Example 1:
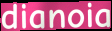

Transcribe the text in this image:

dianoia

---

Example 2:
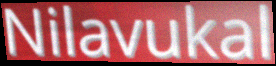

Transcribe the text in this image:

Nilavukal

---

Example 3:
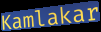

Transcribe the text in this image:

Kamlakar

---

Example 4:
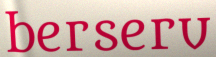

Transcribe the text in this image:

berseru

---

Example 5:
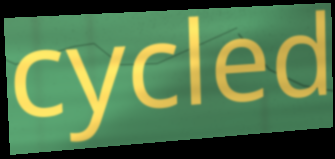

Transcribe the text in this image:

cycled